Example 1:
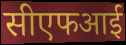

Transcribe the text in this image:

सीएफआई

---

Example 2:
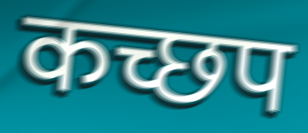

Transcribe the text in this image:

कच्छप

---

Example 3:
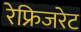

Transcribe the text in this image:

रेफ्रिजरेट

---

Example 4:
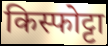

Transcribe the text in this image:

किस्फोट्टा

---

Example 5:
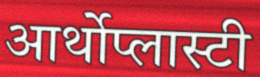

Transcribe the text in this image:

आर्थोप्लास्टी